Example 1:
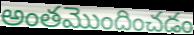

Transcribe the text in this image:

అంతమొందించడం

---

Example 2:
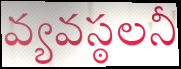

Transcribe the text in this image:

వ్యవస్ఠలనీ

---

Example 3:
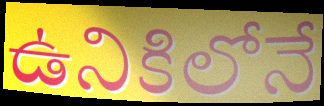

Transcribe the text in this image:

ఉనికిలోనే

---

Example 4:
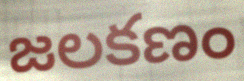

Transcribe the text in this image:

జలకణం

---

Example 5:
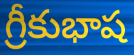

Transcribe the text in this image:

గ్రీకుభాష